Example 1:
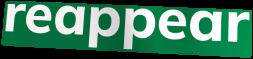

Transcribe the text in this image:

reappear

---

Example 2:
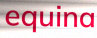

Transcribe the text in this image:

equina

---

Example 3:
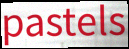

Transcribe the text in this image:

pastels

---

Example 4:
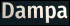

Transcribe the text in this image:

Dampa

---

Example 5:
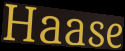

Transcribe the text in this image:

Haase